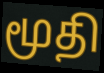
மூதி